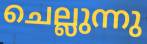
ചെല്ലുന്നു